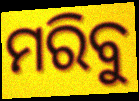
ମରିବୁ